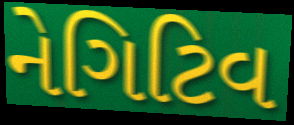
નેગિટિવ